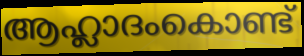
ആഹ്ലാദംകൊണ്ട്